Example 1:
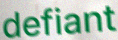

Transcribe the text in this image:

defiant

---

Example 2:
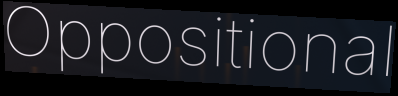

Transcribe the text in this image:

Oppositional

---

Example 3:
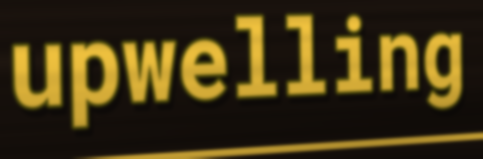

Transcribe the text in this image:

upwelling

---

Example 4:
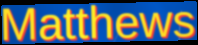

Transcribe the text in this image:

Matthews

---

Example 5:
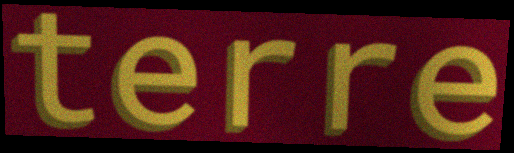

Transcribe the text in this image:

terre